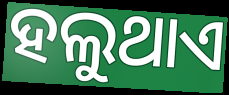
ହଲୁଥାଏ